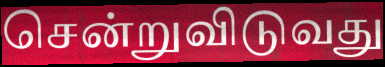
சென்றுவிடுவது